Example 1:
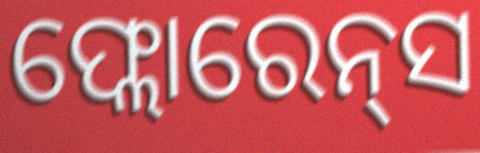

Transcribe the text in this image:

ଫ୍ଲୋରେନ୍‌ସ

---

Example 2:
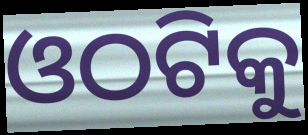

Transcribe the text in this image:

ଓଠଟିକୁ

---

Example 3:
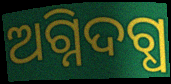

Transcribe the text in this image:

ଅଗ୍ନିଦଗ୍ଧ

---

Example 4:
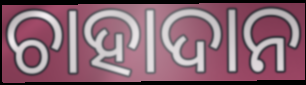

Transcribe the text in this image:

ଚାହାଦାନ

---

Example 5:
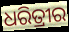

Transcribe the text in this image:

ଧରିତ୍ରୀର